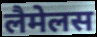
लैमेलस